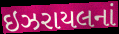
ઇઝરાયલનાં